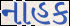
નાહક